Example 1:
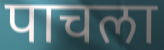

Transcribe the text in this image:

पाचला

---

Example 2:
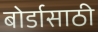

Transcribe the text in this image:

बोर्डासाठी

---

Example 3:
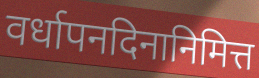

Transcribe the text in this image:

वर्धापनदिनानिमित्त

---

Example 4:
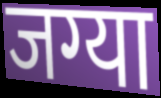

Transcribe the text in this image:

जग्या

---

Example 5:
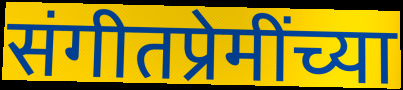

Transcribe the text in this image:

संगीतप्रेमींच्या